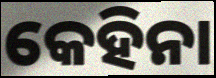
କେହିନା